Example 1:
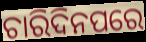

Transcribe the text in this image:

ଚାରିଦିନପରେ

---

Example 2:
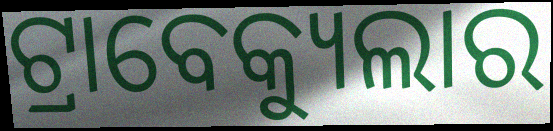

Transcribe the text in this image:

ଟ୍ରାବେକ୍ୟୁଲାର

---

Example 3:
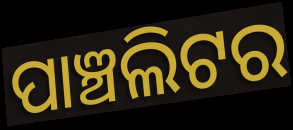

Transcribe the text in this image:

ପାଞ୍ଚଲିଟର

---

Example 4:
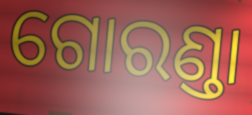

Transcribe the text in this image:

ଗୋରଣ୍ଡା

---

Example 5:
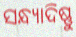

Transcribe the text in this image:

ସନ୍ଧ୍ୟାଦିଷ୍ଣୁ